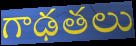
గాఢతలు